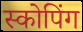
स्कोपिंग